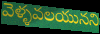
వెళ్ళవలయునని